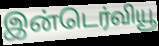
இன்டெர்வியூ